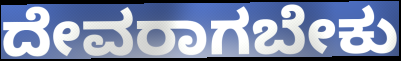
ದೇವರಾಗಬೇಕು